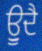
ਊੁਦੈ